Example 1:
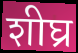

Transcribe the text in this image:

शीघ्र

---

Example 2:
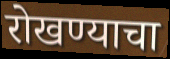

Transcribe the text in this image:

रोखण्याचा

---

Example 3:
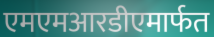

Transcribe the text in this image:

एमएमआरडीएमार्फत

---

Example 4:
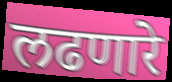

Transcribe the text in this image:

लढणारे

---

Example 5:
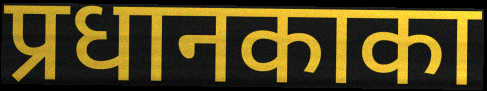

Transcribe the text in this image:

प्रधानकाका